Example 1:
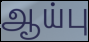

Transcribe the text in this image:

ஆய்பு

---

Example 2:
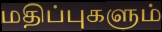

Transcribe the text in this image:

மதிப்புகளும்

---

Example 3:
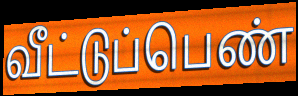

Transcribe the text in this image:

வீட்டுப்பெண்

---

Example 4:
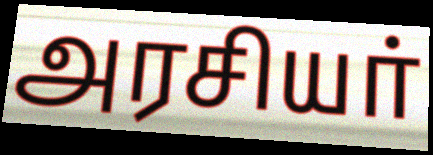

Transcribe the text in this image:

அரசியர்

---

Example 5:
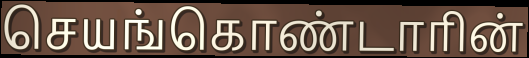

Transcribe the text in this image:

செயங்கொண்டாரின்